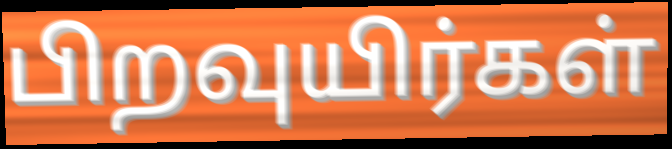
பிறவுயிர்கள்